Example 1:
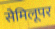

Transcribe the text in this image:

सेमिलूपर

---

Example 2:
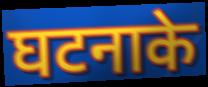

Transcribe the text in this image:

घटनाके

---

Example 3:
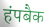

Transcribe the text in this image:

हंपबैक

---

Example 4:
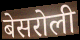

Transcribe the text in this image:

बेसरोली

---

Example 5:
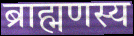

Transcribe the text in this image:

ब्राह्मणस्य